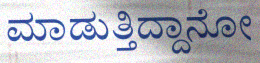
ಮಾಡುತ್ತಿದ್ದಾನೋ